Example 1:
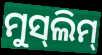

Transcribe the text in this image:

ମୁସ୍‌ଲିମ୍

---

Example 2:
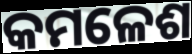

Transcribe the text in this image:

କମଳେଶ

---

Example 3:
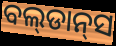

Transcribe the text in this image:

ବଲ୍‌ଡାନ୍‌ସ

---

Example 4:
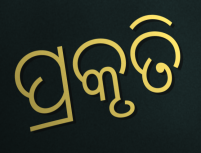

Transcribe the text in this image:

ପ୍ରକୃତି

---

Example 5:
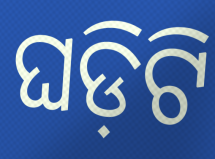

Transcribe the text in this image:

ଘଡ଼ିଟି